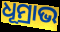
ଧୂମ୍ରାଭ